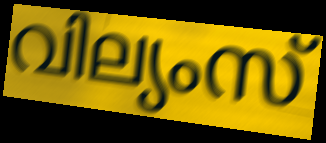
വില്യംസ്